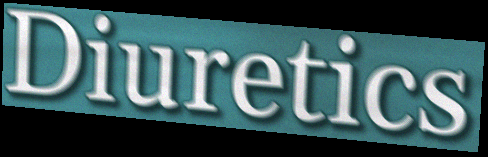
Diuretics